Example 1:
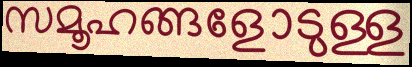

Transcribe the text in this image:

സമൂഹങ്ങളോടുള്ള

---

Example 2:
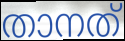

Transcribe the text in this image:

താനത്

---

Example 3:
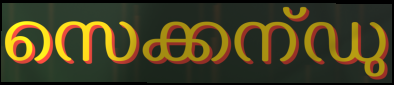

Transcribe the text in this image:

സെക്കന്ഡു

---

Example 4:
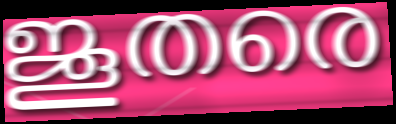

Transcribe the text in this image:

ജൂതരെ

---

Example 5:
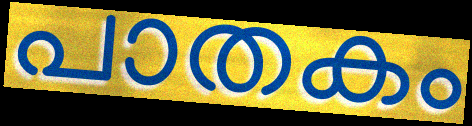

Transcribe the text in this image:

പാതകം